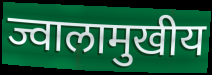
ज्वालामुखीय